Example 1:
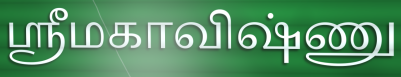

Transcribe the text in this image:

ஸ்ரீமகாவிஷ்ணு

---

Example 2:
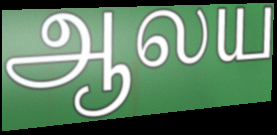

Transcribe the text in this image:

ஆலய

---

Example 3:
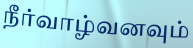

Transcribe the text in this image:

நீர்வாழ்வனவும்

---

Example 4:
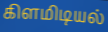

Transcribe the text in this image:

கிளமிடியல்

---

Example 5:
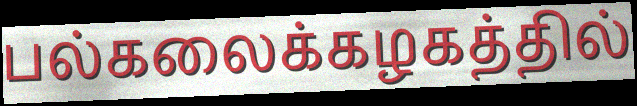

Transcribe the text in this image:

பல்கலைக்கழகத்தில்